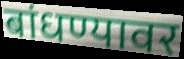
बांधण्यावर